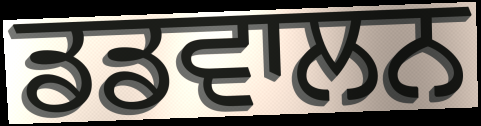
ਡਡਵਾਲਨ